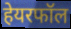
हेयरफॉल